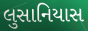
લુસાનિયાસ